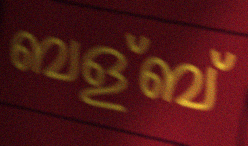
ബള്ബ്